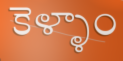
కెళ్ళాం